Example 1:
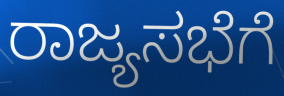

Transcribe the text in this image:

ರಾಜ್ಯಸಭೆಗೆ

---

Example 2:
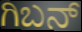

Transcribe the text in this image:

ಗಿಬನ್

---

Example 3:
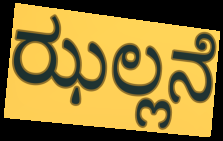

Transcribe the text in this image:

ಝಲ್ಲನೆ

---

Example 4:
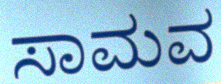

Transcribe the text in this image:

ಸಾಮವ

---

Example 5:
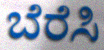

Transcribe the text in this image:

ಬೆರೆಸಿ